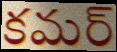
కమర్